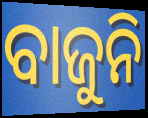
ବାଜୁନି